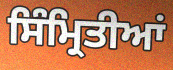
ਸਿੰਮ੍ਰਿਤੀਆਂ